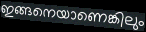
ഇങ്ങനെയാണെങ്കിലും